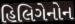
હિલિગેનોન